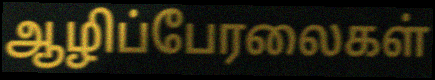
ஆழிப்பேரலைகள்